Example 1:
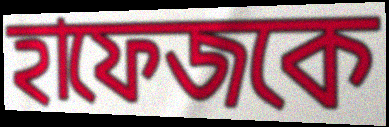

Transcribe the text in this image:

হাফেজকে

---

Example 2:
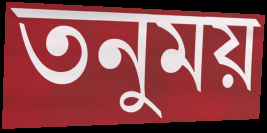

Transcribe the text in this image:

তনুময়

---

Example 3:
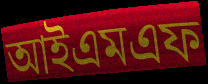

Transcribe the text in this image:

আইএমএফ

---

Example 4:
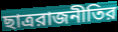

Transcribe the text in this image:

ছাত্ররাজনীতির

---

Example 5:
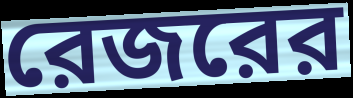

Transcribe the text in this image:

রেজরের